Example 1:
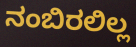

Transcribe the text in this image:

ನಂಬಿರಲಿಲ್ಲ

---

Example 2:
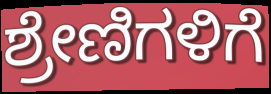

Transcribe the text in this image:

ಶ್ರೇಣಿಗಳಿಗೆ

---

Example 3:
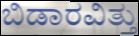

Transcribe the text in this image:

ಬಿಡಾರವಿತ್ತು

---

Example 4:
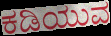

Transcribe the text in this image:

ಕಡಿಯುವ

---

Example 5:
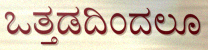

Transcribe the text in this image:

ಒತ್ತಡದಿಂದಲೂ